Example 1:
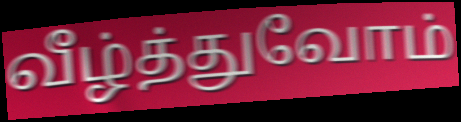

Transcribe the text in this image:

வீழ்த்துவோம்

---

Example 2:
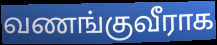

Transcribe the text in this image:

வணங்குவீராக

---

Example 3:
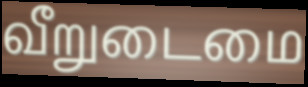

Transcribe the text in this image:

வீறுடைமை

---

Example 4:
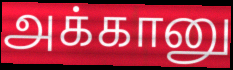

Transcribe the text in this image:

அக்கானு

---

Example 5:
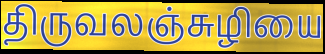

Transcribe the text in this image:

திருவலஞ்சுழியை